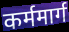
कर्ममार्ग